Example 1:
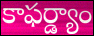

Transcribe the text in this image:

కాఫర్డ్యాం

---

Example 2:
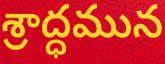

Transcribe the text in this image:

శ్రాద్ధమున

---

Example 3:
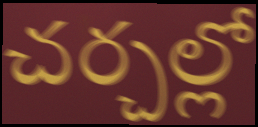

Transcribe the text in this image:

చర్చల్లో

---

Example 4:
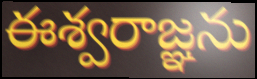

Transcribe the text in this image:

ఈశ్వరాజ్ఞను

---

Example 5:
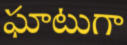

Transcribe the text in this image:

ఘాటుగా